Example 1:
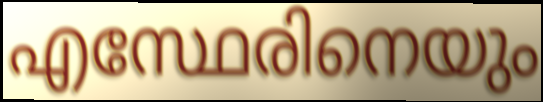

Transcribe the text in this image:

എസ്ഥേരിനെയും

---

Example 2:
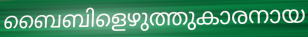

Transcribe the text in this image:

ബൈബിളെഴുത്തുകാരനായ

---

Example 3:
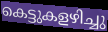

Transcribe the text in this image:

കെട്ടുകളഴിച്ചു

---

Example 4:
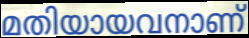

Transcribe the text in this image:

മതിയായവനാണ്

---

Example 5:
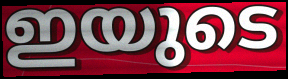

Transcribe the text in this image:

ഇയുടെ